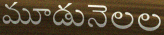
మూడునెలల